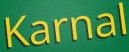
Karnal